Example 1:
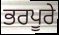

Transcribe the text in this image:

ਭਰਪੂਰੇ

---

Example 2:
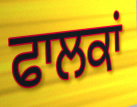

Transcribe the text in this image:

ਫਾਲਕਾਂ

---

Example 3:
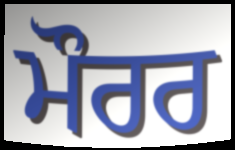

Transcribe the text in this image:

ਮੌਰਰ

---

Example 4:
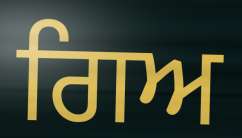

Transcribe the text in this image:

ਗਿਅ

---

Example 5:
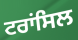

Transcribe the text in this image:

ਟਰਾਂਸਿਲ